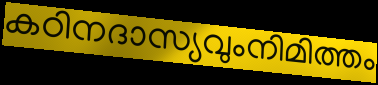
കഠിനദാസ്യവുംനിമിത്തം